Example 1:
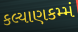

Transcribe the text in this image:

કલ્યાણકમ્મં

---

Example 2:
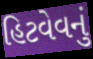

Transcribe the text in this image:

હિટવેવનું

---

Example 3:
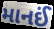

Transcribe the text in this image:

માનઈં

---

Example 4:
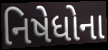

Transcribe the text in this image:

નિષેધોના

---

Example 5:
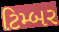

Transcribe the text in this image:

ટિમ્બર